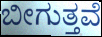
ಬೀಗುತ್ತವೆ